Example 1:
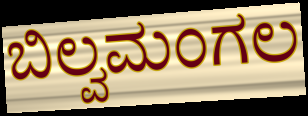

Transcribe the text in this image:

ಬಿಲ್ವಮಂಗಲ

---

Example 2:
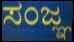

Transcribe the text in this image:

ಸಂಜ್ಞ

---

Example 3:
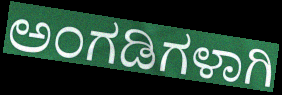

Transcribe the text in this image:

ಅಂಗಡಿಗಳಾಗಿ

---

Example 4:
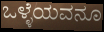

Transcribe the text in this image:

ಒಳ್ಳೆಯವನೂ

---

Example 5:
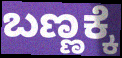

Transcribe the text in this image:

ಬಣ್ಣಕ್ಕೆ